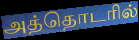
அத்தொடரில்